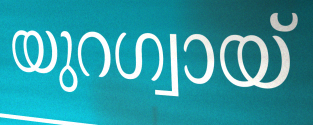
യുറഗ്വായ്